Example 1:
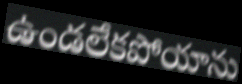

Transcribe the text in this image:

ఉండలేకపోయాను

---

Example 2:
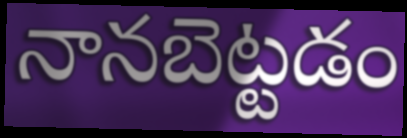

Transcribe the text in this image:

నానబెట్టడం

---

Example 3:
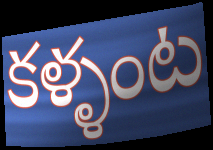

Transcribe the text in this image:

కళ్ళంట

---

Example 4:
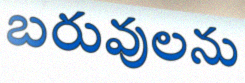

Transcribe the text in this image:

బరువులను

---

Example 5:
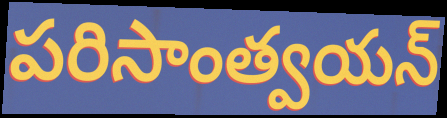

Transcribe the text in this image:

పరిసాంత్వయన్